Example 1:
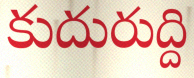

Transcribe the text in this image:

కుదురుద్ది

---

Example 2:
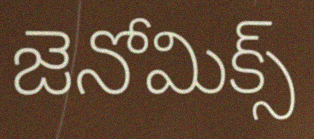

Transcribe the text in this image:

జెనోమిక్స్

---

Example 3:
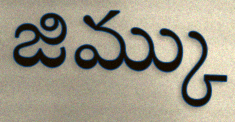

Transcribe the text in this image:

జిమ్కు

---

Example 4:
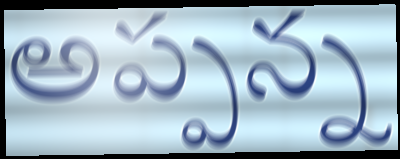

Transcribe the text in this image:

అప్పన్న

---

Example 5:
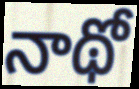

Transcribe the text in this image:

నాథో